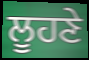
ਲੂਹਣੇ